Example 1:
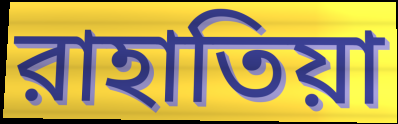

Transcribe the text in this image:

রাহাতিয়া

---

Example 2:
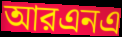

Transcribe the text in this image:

আরএনএ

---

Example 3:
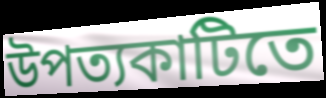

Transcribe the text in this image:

উপত্যকাটিতে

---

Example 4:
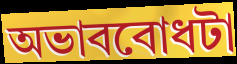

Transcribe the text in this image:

অভাববোধটা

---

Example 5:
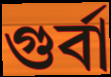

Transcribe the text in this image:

গুর্বা